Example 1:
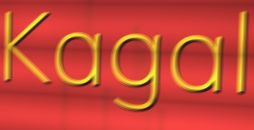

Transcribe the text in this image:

Kagal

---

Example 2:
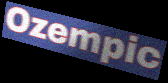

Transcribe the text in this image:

Ozempic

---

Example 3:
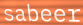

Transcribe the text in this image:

sabeer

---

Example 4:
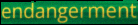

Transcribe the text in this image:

endangerment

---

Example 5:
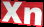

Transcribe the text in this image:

Xn